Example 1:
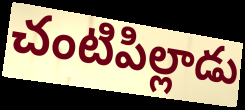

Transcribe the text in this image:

చంటిపిల్లాడు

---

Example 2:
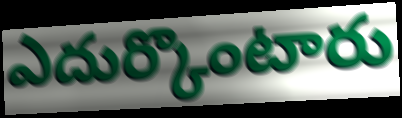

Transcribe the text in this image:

ఎదుర్కొంటారు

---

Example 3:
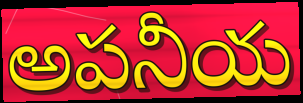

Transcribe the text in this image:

అపనీయ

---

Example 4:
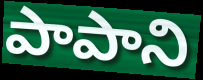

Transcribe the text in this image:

పాపాని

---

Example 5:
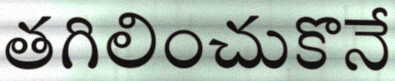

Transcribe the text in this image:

తగిలించుకొనే